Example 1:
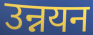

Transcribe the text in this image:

उन्नयन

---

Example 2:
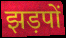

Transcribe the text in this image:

झड़पों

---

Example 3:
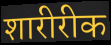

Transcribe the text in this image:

शारीरीक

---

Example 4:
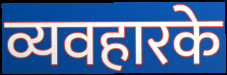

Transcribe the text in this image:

व्यवहारके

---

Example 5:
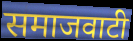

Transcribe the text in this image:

समाजवाटी